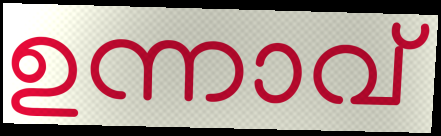
ഉന്നാവ്